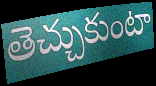
తెచ్చుకుంటా